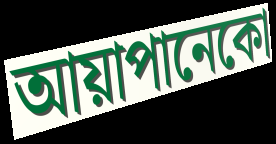
আয়াপানেকো